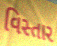
વિસ્તાર